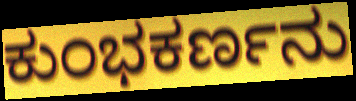
ಕುಂಭಕರ್ಣನು